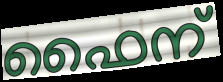
ഫൈന്